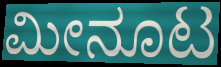
ಮೀನೂಟ